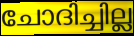
ചോദിച്ചില്ല